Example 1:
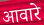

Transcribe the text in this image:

आवारे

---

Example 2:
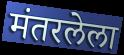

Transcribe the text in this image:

मंतरलेला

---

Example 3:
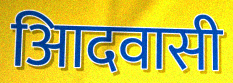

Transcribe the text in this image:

आिदवासी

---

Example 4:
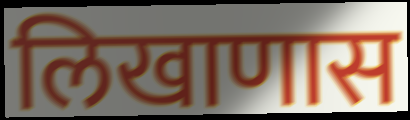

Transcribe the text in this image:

लिखाणास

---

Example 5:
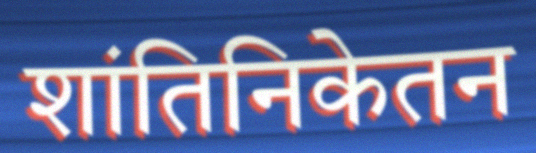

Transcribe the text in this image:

शांतिनिकेतन